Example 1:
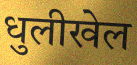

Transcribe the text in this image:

धुलीखेल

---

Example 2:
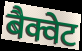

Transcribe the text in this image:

बैक्वेट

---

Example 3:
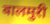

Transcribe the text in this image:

बालमुरी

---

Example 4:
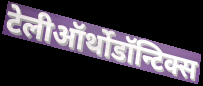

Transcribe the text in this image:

टेलीऑर्थोडॉन्टिक्स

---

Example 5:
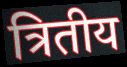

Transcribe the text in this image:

त्रितीय